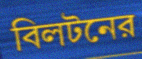
বিলটনের